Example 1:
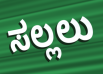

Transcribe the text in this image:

ಸಲ್ಲಲು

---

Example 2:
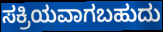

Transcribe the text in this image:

ಸಕ್ರಿಯವಾಗಬಹುದು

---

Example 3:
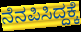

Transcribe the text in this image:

ನೆನಪಿಸಿದ್ದಕ್ಕೆ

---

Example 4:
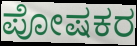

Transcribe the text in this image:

ಪೋಷಕರ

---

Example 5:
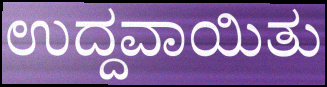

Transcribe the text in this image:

ಉದ್ದವಾಯಿತು